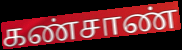
கண்சாண்